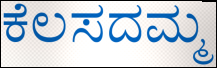
ಕೆಲಸದಮ್ಮ